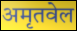
अमृतवेल